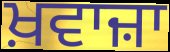
ਖ਼ਵਾਜ਼ਾ